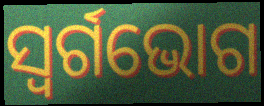
ସ୍ୱର୍ଗଭୋଗ